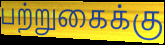
பற்றுகைக்கு